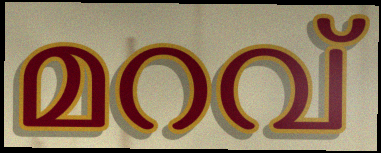
മറവ്